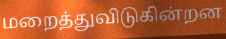
மறைத்துவிடுகின்றன